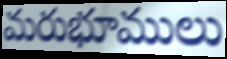
మరుభూములు